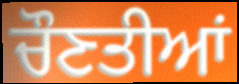
ਚੌਣਤੀਆਂ